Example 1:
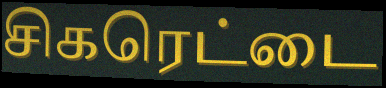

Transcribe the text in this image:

சிகரெட்டை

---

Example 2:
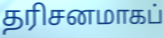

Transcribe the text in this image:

தரிசனமாகப்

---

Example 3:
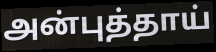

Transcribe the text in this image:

அன்புத்தாய்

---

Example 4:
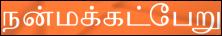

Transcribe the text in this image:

நன்மக்கட்பேறு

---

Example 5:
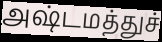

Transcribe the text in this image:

அஷ்டமத்துச்